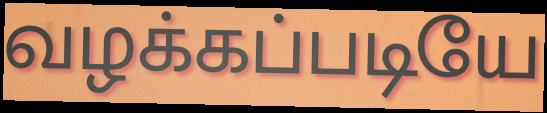
வழக்கப்படியே